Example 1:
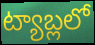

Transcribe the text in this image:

ట్యాబ్లలో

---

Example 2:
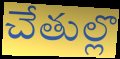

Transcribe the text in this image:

చేతుల్లొ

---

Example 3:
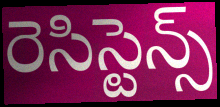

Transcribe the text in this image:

రెసిస్టెన్స్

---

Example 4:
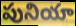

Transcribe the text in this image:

పునియా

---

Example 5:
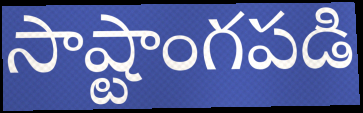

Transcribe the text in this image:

సాష్టాంగపడి